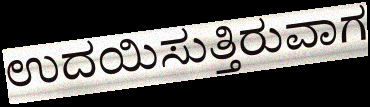
ಉದಯಿಸುತ್ತಿರುವಾಗ